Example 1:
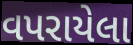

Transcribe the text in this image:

વપરાયેલા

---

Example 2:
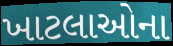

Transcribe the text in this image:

ખાટલાઓના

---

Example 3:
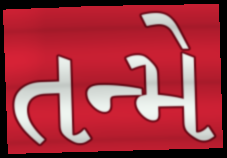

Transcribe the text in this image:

તન્મે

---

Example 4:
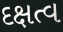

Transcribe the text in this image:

દક્ષત્વ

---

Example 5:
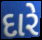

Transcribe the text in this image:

દારે